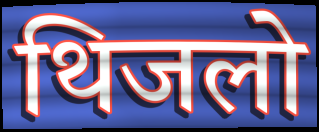
थिजलो